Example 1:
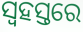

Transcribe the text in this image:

ସ୍ୱହସ୍ତରେ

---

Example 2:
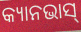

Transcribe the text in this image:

କ୍ୟାନଭାସ୍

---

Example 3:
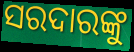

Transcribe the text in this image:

ସରଦାରଙ୍କୁ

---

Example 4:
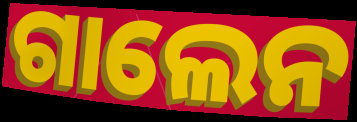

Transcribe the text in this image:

ଗାଲେନ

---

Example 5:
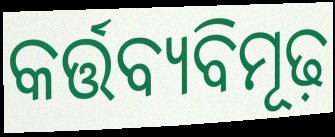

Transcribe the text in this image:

କର୍ତ୍ତବ୍ୟବିମୂଢ଼